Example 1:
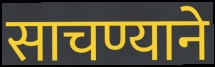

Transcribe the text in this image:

साचण्याने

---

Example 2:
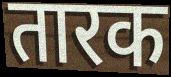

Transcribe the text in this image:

तारक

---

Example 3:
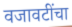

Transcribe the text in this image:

वजावटींचा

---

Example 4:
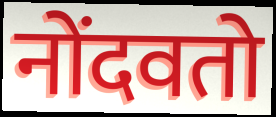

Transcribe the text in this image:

नोंदवतो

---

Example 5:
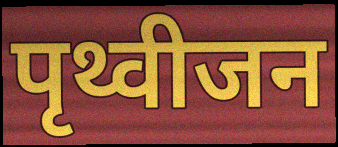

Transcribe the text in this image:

पृथ्वीजन